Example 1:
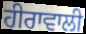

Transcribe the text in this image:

ਹੀਰਾਵਾਲੀ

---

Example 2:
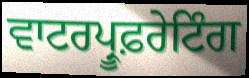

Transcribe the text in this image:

ਵਾਟਰਪ੍ਰੂਫ਼ਰੇਟਿੰਗ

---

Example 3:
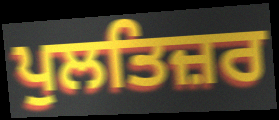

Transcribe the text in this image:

ਪੁਲਤਿਜ਼ਰ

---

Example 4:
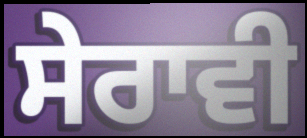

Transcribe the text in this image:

ਸੇਰਾਵੀ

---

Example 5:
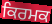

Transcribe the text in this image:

ਕਿਰਮਕ